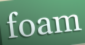
foam